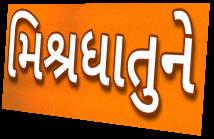
મિશ્રધાતુને